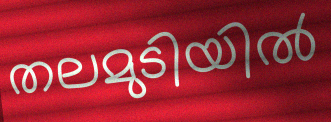
തലമുടിയിൽ